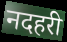
नदहरी